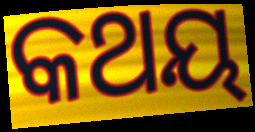
କଥୟ